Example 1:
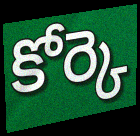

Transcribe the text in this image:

కోర్కె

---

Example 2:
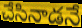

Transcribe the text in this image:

చేసినాడనే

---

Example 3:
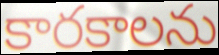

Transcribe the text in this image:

కారకాలను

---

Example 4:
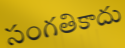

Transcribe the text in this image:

సంగతికాదు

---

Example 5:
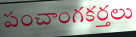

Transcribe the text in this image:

పంచాంగకర్తలు